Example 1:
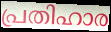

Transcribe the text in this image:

പ്രതിഹാര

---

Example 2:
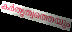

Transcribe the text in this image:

കർതൃത്വത്തെയും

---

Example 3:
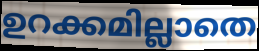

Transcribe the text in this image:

ഉറക്കമില്ലാതെ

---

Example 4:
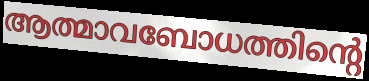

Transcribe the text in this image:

ആത്മാവബോധത്തിന്റെ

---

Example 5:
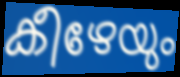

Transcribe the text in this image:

കീഴേയും